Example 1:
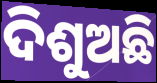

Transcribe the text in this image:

ଦିଶୁଅଛି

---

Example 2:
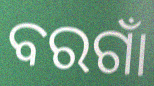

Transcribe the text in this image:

ବରଗାଁ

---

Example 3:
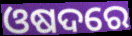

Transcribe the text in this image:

ଓଷଦରେ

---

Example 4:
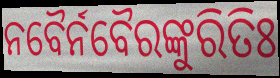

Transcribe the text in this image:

ନବୈର୍ନବୈରଙ୍କୁରିତିଃ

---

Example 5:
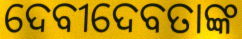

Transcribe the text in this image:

ଦେବୀଦେବତାଙ୍କ